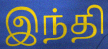
இந்தி